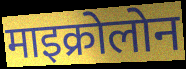
माइक्रोलोन